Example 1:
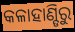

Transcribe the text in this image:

କଳାହାଣ୍ଡିରୁ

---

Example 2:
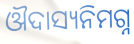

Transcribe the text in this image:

ଔଦାସ୍ୟନିମଗ୍ନ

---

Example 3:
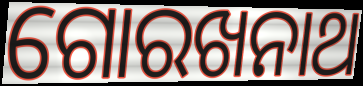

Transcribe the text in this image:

ଗୋରଖନାଥ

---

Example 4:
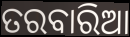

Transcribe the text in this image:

ତରବାରିଆ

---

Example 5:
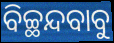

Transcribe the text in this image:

ବିଚ୍ଛନ୍ଦବାବୁ